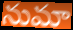
నుమా